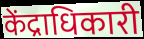
केंद्राधिकारी